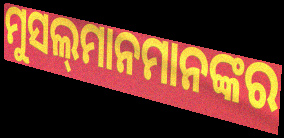
ମୁସଲ୍‌ମାନମାନଙ୍କର